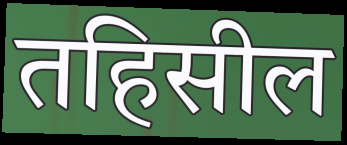
तहिसील